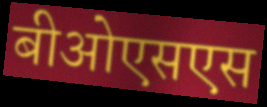
बीओएसएस